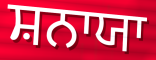
ਸ਼ਨਾਯਾ